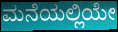
ಮನೆಯಲ್ಲಿಯೇ